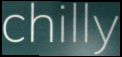
chilly